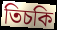
তিচকি